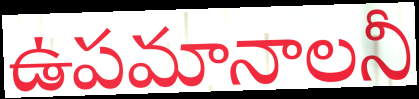
ఉపమానాలనీ